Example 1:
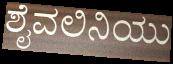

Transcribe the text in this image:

ಶೈವಲಿನಿಯು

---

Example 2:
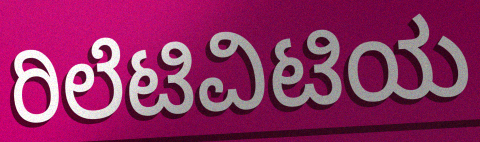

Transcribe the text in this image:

ರಿಲೆಟಿವಿಟಿಯ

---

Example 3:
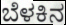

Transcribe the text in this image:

ಬೆಳಕಿನ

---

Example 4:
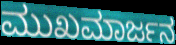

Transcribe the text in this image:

ಮುಖಮಾರ್ಜನ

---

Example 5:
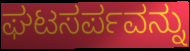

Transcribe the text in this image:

ಘಟಸರ್ಪವನ್ನು